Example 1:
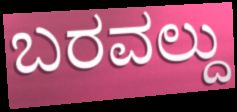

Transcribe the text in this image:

ಬರವಲ್ದು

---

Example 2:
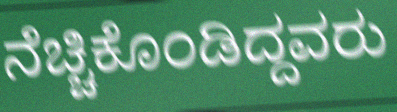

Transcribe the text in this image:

ನೆಚ್ಚಿಕೊಂಡಿದ್ದವರು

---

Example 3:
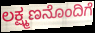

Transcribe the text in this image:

ಲಕ್ಷ್ಮಣನೊಂದಿಗೆ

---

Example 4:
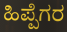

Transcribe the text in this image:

ಹಿಪ್ಪೆಗರ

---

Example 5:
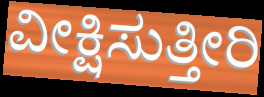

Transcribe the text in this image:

ವೀಕ್ಷಿಸುತ್ತೀರಿ